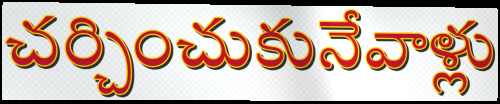
చర్చించుకునేవాళ్లు